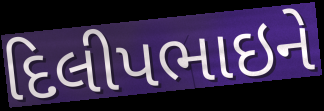
દિલીપભાઇને